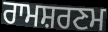
ਰਾਮਸ਼ਰਣਮ